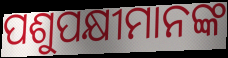
ପଶୁପକ୍ଷୀମାନଙ୍କ